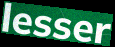
lesser